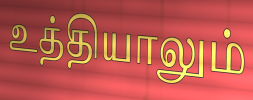
உத்தியாலும்